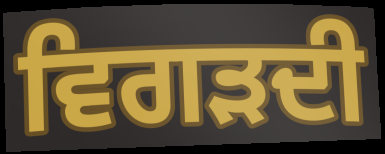
ਵਿਗੜਦੀ